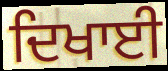
ਦਿਖਾਈ